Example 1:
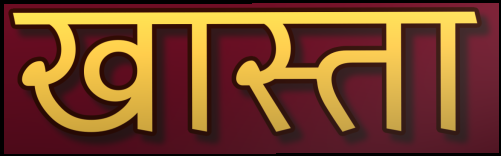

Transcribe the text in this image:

खास्ता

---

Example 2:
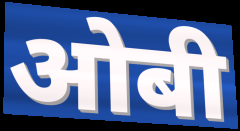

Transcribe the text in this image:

ओबी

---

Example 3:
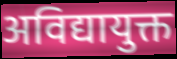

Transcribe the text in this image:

अविद्यायुक्त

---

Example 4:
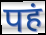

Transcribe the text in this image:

पहं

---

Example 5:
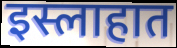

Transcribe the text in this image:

इस्लाहात